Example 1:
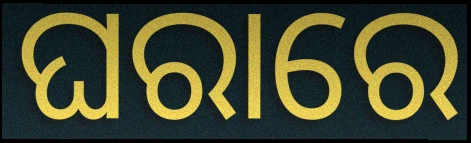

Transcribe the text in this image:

ଘରାରେ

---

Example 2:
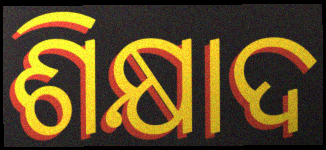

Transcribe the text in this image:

ଶିକ୍ଷାଦ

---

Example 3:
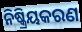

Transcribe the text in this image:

ନିଷ୍କ୍ରିୟକରଣ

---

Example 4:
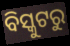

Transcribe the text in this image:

ବିସ୍କୁଟରୁ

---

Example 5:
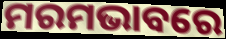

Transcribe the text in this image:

ମରମଭାବରେ